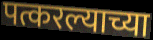
पत्करल्याच्या